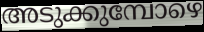
അടുക്കുമ്പോഴെ